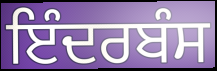
ਇੰਦਰਬੰਸ